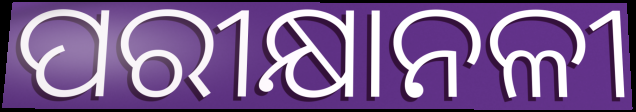
ପରୀକ୍ଷାନଳୀ